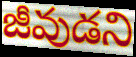
జీవుడని